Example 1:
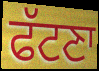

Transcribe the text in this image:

ਫੱਟਣਾ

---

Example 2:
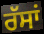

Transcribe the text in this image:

ਰੱਸਾਂ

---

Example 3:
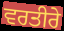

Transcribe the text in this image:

ਵਰਤੀਰੇ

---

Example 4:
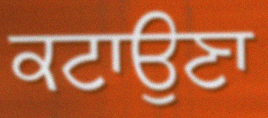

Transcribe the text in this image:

ਕਟਾਉਣਾ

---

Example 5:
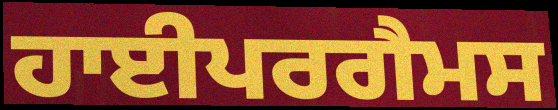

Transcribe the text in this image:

ਹਾਈਪਰਗੈਮਸ